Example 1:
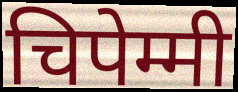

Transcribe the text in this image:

चिपेम्मी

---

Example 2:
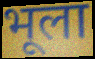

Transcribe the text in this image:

भूला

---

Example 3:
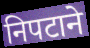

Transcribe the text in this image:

निपटाने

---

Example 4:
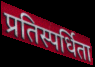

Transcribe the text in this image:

प्रतिस्पर्धिता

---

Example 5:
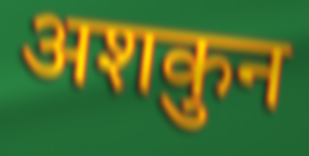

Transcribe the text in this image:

अशकुन